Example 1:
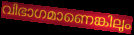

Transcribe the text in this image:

വിഭാഗമാണെങ്കിലും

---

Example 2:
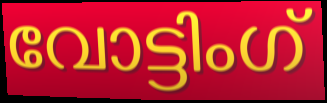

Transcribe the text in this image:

വോട്ടിംഗ്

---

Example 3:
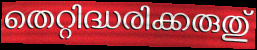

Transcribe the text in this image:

തെറ്റിദ്ധരിക്കരുതു്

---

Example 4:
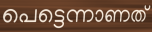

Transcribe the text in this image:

പെട്ടെന്നാണത്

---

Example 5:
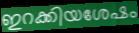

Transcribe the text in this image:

ഇറക്കിയശേഷം